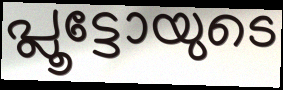
പ്ലൂട്ടോയുടെ